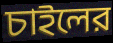
চাইলের